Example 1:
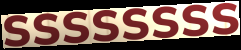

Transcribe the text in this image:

ssssssss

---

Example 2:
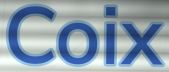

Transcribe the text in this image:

Coix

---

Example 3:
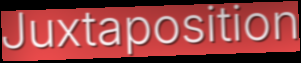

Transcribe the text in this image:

Juxtaposition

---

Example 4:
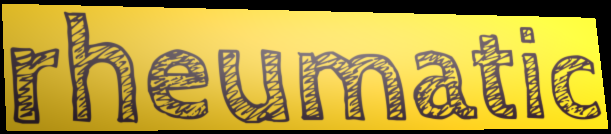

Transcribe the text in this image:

rheumatic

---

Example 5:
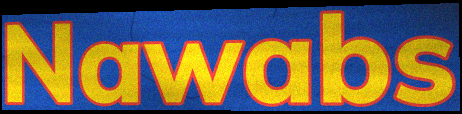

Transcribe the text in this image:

Nawabs